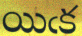
యిఁక